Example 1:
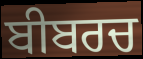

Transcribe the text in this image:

ਬੀਬਰਚ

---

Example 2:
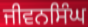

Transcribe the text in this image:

ਜੀਵਨਸਿੰਘ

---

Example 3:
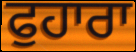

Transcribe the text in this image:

ਫੁਹਾਰਾ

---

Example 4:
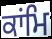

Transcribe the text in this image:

ਕਾਂਮਿ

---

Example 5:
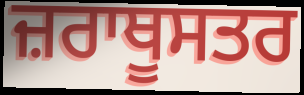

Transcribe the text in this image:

ਜ਼ਰਾਥੂਸਤਰ